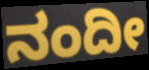
ನಂದೀ